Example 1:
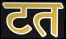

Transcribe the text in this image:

टत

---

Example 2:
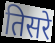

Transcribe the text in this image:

तिसरे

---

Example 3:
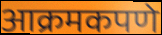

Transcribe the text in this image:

आक्रमकपणे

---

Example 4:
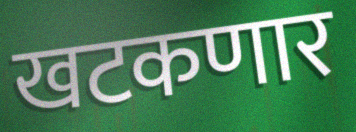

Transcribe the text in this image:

खटकणार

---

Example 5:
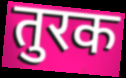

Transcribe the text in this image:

तुरक